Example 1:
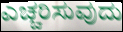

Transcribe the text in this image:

ಎಚ್ಚರಿಸುವುದು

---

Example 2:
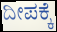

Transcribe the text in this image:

ದೀಪಕ್ಕೆ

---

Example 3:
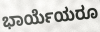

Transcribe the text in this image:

ಭಾರ್ಯೆಯರೂ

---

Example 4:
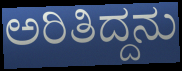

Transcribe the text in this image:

ಅರಿತಿದ್ದನು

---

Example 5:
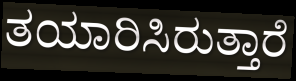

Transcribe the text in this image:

ತಯಾರಿಸಿರುತ್ತಾರೆ